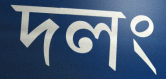
দলং